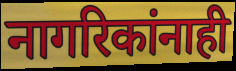
नागरिकांनाही